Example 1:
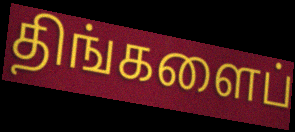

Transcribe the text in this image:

திங்களைப்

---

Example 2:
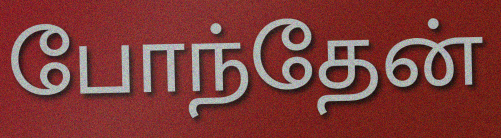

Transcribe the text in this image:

போந்தேன்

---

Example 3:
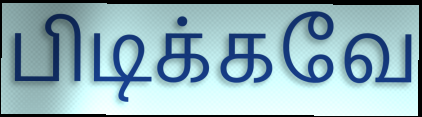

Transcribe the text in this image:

பிடிக்கவே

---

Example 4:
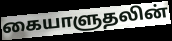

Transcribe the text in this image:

கையாளுதலின்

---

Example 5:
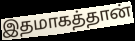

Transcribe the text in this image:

இதமாகத்தான்